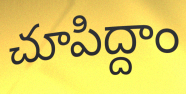
చూపిద్దాం